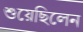
শুয়েছিলেন